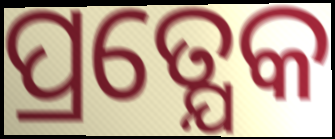
ପ୍ରତ୍ଯେକ